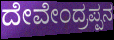
ದೇವೇಂದ್ರಪ್ಪನ